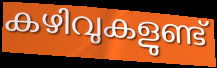
കഴിവുകളുണ്ട്